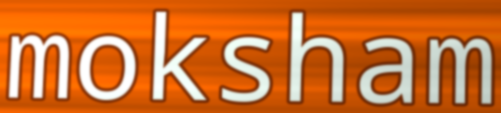
moksham